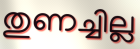
തുണച്ചില്ല